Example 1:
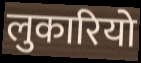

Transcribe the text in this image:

लुकारियो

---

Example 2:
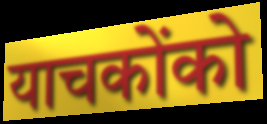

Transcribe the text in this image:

याचकोंको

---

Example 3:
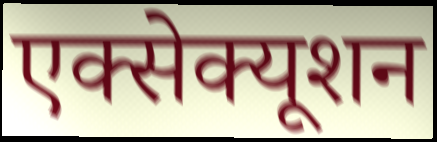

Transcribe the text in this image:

एक्सेक्यूशन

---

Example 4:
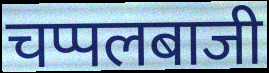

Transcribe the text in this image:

चप्पलबाजी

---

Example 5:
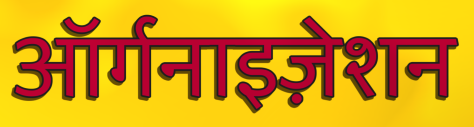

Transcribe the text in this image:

ऑर्गनाइज़ेशन